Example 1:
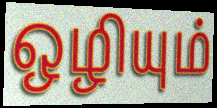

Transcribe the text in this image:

ஒழியும்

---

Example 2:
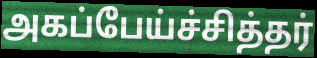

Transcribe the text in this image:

அகப்பேய்ச்சித்தர்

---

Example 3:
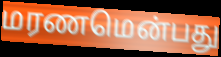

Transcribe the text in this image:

மரணமென்பது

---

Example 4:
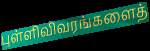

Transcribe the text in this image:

புள்ளிவிவரங்களைத்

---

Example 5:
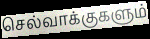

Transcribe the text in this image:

செல்வாக்குகளும்